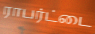
ராபர்ட்டை